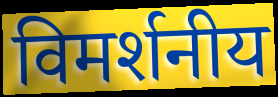
विमर्शनीय